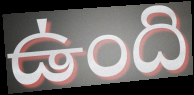
ఉంది